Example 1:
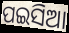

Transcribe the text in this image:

ପଇସିଆ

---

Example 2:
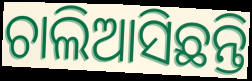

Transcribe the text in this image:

ଚାଲିଆସିଛନ୍ତି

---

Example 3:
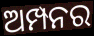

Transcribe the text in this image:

ଅମ୍ପନର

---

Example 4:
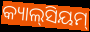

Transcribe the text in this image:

କ୍ୟାଲ୍‌ସିୟମ୍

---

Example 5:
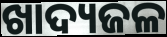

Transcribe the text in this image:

ଖାଦ୍ୟଜଳ